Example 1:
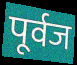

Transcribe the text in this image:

पूर्वज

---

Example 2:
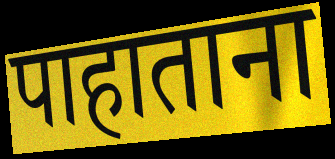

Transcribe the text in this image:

पाहाताना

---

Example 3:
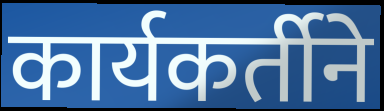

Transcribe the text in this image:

कार्यकर्तीने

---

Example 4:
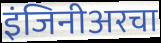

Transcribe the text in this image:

इंजिनीअरचा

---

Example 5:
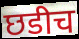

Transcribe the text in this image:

छडीच